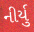
નીર્યુ